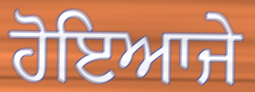
ਹੋਇਆਜੇ